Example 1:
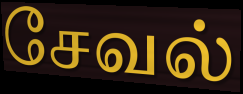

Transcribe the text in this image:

சேவல்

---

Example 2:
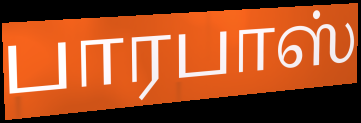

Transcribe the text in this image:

பாரபாஸ்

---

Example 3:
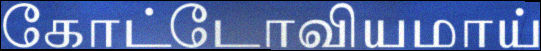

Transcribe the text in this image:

கோட்டோவியமாய்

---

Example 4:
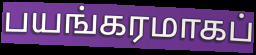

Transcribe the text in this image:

பயங்கரமாகப்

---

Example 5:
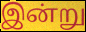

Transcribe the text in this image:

இன்று